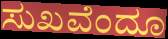
ಸುಖವೆಂದೂ